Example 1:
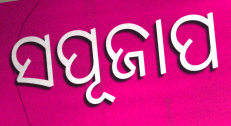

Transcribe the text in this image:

ସପୂଜାପ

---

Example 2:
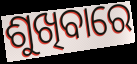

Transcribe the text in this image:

ଶୁଖିବାରେ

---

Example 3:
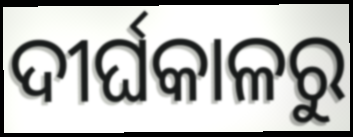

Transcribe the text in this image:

ଦୀର୍ଘକାଳରୁ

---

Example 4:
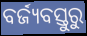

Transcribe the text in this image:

ବର୍ଜ୍ୟବସ୍ତୁରୁ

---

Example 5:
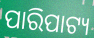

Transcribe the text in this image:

ପାରିପାଟ୍ୟ